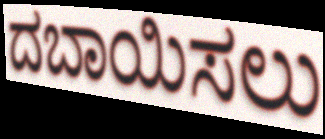
ದಬಾಯಿಸಲು